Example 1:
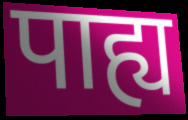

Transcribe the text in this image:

पाह्य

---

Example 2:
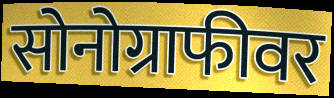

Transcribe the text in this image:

सोनोग्राफीवर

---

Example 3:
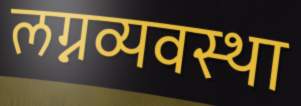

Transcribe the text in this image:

लग्नव्यवस्था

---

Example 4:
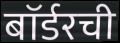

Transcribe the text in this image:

बॉर्डरची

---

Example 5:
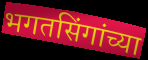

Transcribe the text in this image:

भगतसिंगांच्या